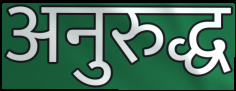
अनुरुद्ध